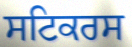
ਸਟਿਕਰਸ